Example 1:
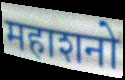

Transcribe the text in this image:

महाशनो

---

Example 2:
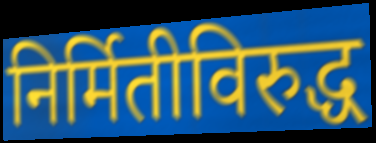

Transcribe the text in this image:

निर्मितीविरुद्ध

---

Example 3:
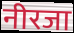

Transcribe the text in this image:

नीरजा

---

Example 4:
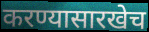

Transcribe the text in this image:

करण्यासारखेच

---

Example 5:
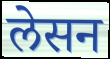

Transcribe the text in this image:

लेसन